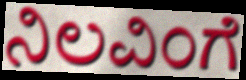
ನಿಲವಿಂಗೆ